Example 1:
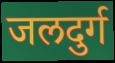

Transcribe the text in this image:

जलदुर्ग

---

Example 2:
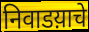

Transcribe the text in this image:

निवाडय़ाचे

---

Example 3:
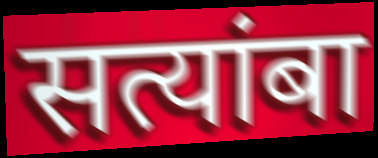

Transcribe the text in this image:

सत्यांबा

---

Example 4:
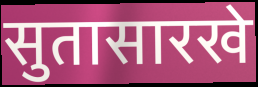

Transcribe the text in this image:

सुतासारखे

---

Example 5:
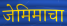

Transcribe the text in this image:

जेमिमाचा